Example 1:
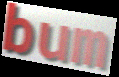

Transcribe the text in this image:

bum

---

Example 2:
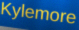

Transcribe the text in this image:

Kylemore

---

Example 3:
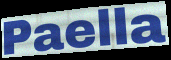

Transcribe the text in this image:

Paella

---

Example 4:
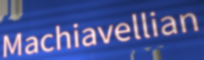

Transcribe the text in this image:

Machiavellian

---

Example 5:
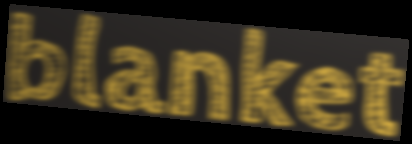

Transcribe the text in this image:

blanket